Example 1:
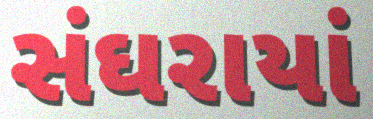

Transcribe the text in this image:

સંઘરાયાં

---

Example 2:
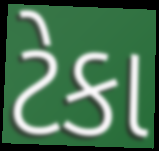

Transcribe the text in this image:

ટેકા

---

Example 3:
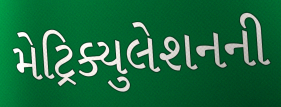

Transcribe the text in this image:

મેટ્રિક્યુલેશનની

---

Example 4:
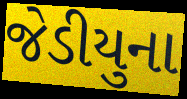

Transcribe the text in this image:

જેડીયુના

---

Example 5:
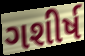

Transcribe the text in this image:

ગશીર્ષ